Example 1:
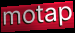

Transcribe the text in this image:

motap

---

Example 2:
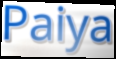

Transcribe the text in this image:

Paiya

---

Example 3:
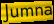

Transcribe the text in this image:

Jumna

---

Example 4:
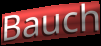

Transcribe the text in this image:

Bauch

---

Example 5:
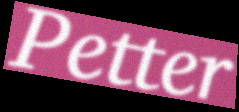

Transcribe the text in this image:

Petter